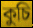
কুচি